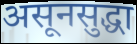
असूनसुद्धा